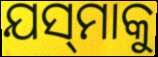
ଯସ୍‌ମାକୁ